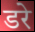
डरे